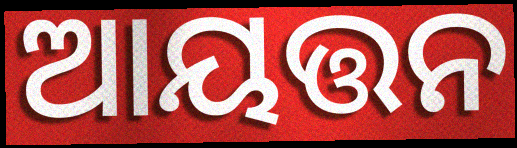
ଆୟତ୍ତନ